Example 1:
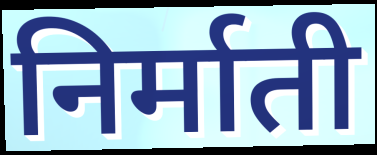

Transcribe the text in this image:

निर्माती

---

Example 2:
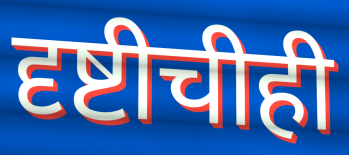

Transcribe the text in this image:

दृष्टीचीही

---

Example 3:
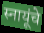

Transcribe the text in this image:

स्नायूंचे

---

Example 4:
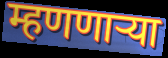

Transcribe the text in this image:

म्हणणार्‍या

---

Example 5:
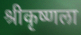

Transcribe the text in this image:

श्रीकृष्णला